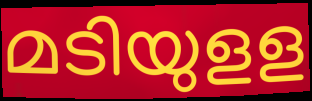
മടിയുളള